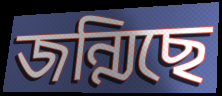
জন্মিছে